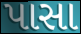
પાસા